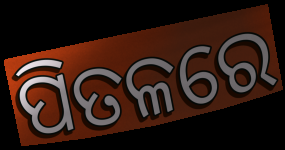
ପିତଳରେ